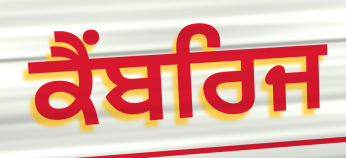
ਕੈਂਬਰਿਜ